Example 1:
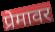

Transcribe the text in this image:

प्रेमावर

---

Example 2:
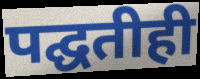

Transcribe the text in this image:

पद्घतीही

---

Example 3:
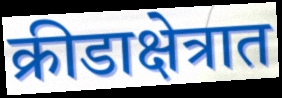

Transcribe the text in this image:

क्रीडाक्षेत्रात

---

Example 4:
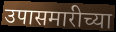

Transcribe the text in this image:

उपासमारीच्या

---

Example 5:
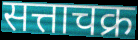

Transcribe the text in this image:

सत्ताचक्र